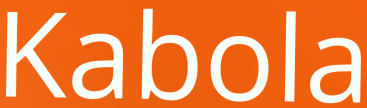
Kabola